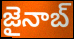
జైనాబ్